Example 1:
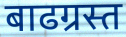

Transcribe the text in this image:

बाढग्रस्त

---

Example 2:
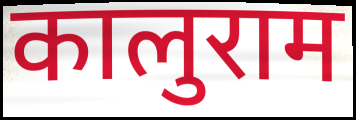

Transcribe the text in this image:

कालुराम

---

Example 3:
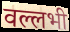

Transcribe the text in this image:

वल्लभी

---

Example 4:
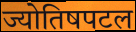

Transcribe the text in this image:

ज्योतिषपटल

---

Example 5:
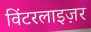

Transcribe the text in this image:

विंटरलाइज़र